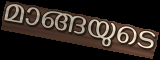
മാങ്ങയുടെ